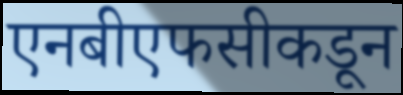
एनबीएफसीकडून